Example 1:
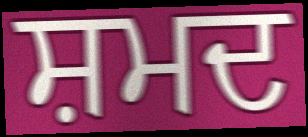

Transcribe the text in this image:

ਸ਼ਮਦ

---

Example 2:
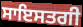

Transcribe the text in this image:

ਸਾਇਸਤਗੀ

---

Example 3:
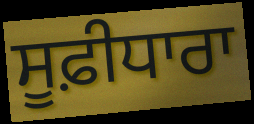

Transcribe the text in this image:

ਸੂਫ਼ੀਧਾਰਾ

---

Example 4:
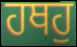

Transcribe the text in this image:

ਹਥਹੁ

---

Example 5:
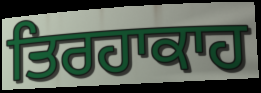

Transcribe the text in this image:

ਤਿਰਹਾਕਾਹ